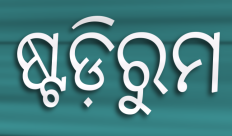
ଷ୍ଟଡ଼ିରୁମ